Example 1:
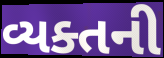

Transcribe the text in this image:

વ્યક્તની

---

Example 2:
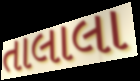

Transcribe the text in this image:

તાલાલા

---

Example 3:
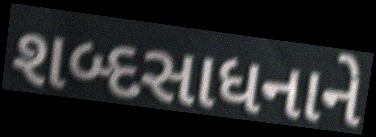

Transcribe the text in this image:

શબ્દસાધનાને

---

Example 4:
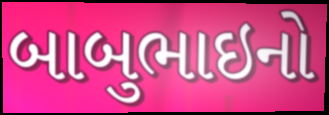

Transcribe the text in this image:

બાબુભાઇનો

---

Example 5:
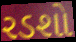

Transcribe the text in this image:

રડશો